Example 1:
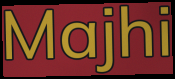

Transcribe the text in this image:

Majhi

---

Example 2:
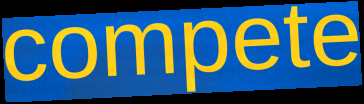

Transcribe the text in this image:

compete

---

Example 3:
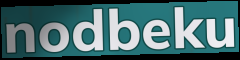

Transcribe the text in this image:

nodbeku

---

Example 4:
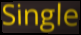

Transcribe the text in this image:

Single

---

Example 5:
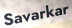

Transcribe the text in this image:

Savarkar